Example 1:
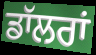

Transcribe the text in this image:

ਡਾੱਲਰਾਂ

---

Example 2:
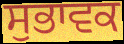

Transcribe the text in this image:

ਸੁਭਾਵਕ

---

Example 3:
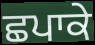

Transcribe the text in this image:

ਛਪਾਕੇ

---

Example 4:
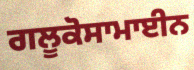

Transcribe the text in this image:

ਗਲੂਕੋਸਾਮਾਈਨ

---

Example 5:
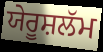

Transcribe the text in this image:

ਯੇਰੂਸ਼ਲੱਮ